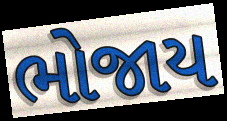
ભોજાય